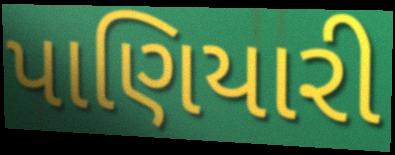
પાણિયારી